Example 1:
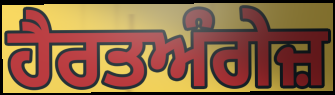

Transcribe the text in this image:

ਹੈਰਤਅੰਗੇਜ਼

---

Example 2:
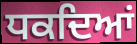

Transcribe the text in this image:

ਧਕਦਿਆਂ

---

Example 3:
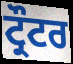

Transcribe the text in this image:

ਟ੍ਰੌਟਰ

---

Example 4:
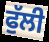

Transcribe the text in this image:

ਫੁੱਲੀ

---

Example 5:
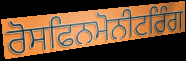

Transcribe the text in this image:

ਰੋਸਫਿਨਮੋਨੀਟਰਿੰਗ